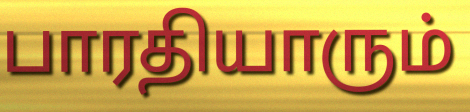
பாரதியாரும்